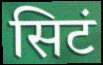
सिटं